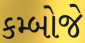
કમ્બોજે